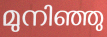
മുനിഞ്ഞു